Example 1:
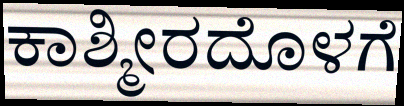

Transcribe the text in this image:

ಕಾಶ್ಮೀರದೊಳಗೆ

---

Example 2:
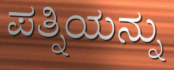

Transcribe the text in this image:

ಪತ್ನಿಯನ್ನು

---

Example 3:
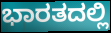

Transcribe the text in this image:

ಭಾರತದಲ್ಲಿ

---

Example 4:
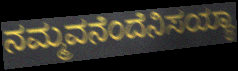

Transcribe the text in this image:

ನಮ್ಮವನೆಂದೆನಿಸಯ್ಯಾ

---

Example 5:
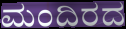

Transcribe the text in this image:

ಮಂದಿರದ